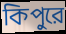
কিপুরে